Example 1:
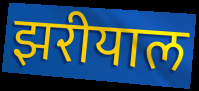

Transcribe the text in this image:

झरीयाल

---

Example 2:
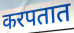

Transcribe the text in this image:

करपतात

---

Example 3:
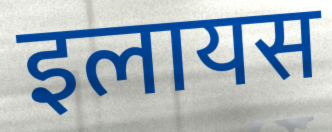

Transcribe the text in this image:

इलायस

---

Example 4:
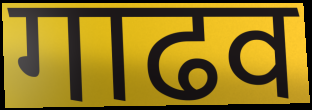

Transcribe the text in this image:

गाढव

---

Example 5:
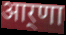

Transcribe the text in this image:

आर्णा